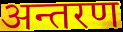
अन्तरण